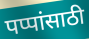
पप्पांसाठी